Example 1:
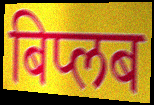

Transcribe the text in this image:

बिप्लब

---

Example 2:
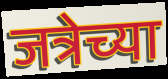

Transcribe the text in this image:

जत्रेच्या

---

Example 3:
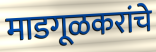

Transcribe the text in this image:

माडगूळकरांचे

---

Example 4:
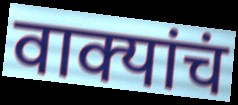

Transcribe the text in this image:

वाक्यांचं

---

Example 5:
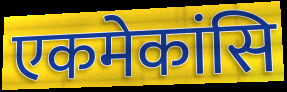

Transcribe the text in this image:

एकमेकांसि